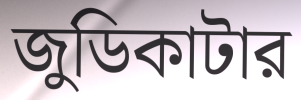
জুডিকাটার